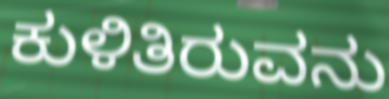
ಕುಳಿತಿರುವನು